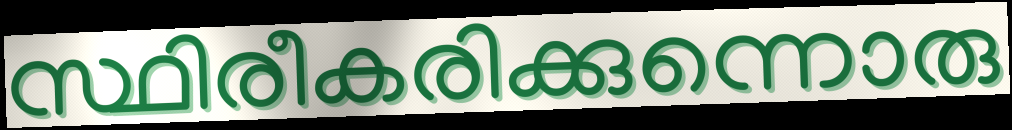
സ്ഥിരീകരിക്കുന്നൊരു